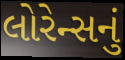
લોરેન્સનું